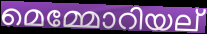
മെമ്മോറിയല്